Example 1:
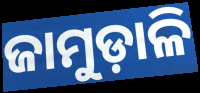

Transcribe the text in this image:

ଜାମୁଡ଼ାଳି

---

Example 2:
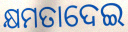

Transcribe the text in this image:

କ୍ଷମତାଦେଇ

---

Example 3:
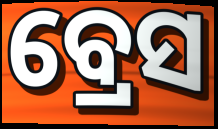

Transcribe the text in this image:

ବ୍ରେସ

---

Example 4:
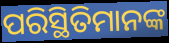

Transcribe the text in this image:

ପରିସ୍ଥିତିମାନଙ୍କ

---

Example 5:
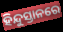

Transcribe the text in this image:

ହିନ୍ଦୁସ୍ତାନରେ